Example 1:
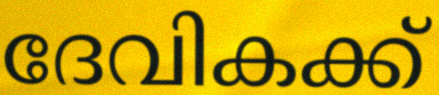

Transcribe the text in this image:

ദേവികക്ക്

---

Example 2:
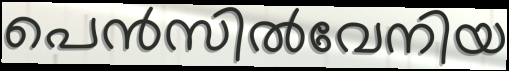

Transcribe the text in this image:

പെൻസിൽവേനിയ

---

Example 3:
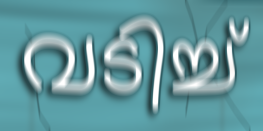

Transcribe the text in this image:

വടിച്ച്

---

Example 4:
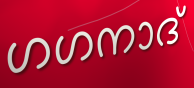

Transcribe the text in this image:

ഗഗനാദ്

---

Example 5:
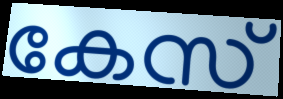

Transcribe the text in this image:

കേസ്